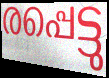
രപ്പെട്ടു